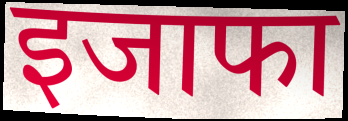
इजाफा